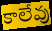
కాలేవు